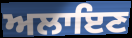
ਅਲਾਇਣ